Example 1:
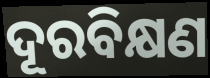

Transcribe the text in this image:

ଦୂରବିକ୍ଷଣ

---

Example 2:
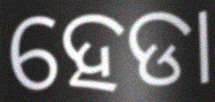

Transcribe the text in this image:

ହେଡା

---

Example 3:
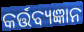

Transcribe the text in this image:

କର୍ତ୍ତବ୍ୟଜ୍ଞାନ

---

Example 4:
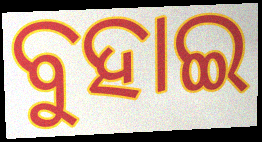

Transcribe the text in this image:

ବୁହାଇ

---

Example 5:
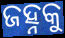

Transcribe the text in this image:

ଜହ୍ନକୁ